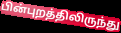
பின்புறத்திலிருந்து